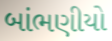
બાંભણીયો